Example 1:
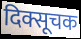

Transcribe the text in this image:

दिक्सूचक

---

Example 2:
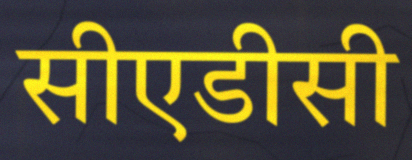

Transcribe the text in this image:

सीएडीसी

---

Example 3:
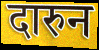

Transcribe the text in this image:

दारुन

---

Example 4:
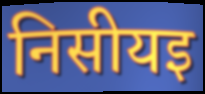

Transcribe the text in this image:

निसीयइ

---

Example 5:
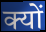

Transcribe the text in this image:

क्‍यों